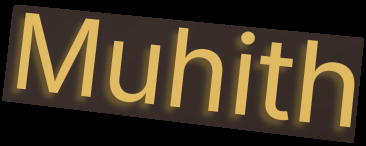
Muhith